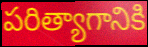
పరిత్యాగానికి